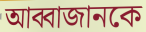
আব্বাজানকে